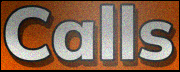
Calls